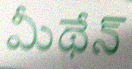
మీథేన్